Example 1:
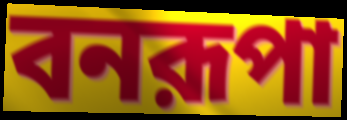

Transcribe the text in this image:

বনরূপা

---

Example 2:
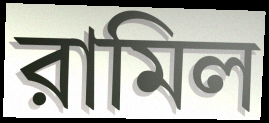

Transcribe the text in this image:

রামিল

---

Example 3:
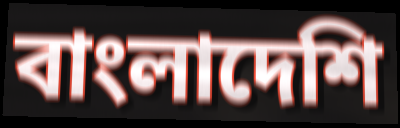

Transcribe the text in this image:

বাংলাদেশি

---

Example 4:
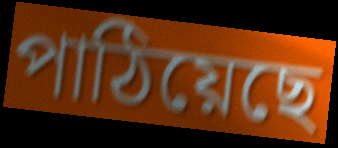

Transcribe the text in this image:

পাঠিয়েছে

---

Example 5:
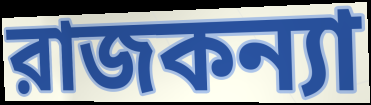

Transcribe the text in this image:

রাজকন্যা